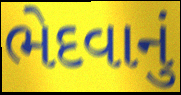
ભેદવાનું